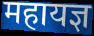
महायज्ञ